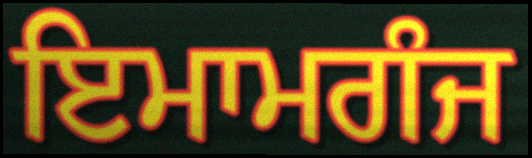
ਇਮਾਮਗੰਜ